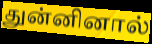
துன்னினால்